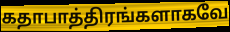
கதாபாத்திரங்களாகவே